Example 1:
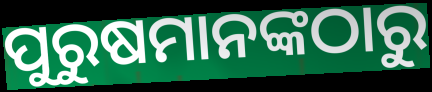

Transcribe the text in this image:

ପୁରୁଷମାନଙ୍କଠାରୁ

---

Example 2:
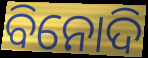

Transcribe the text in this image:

ବିନୋଦି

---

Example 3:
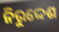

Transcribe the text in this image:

ନିରୁଦ୍ଦେଶ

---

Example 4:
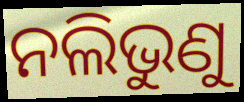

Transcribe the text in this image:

ନଲିଭୁଣୁ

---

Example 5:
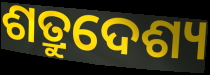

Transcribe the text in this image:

ଶତ୍ରୁଦେଶ୍ୟ